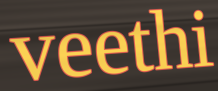
veethi